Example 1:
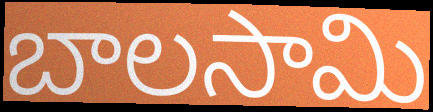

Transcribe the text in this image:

బాలసామి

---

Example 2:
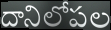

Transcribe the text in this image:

దానిలోపల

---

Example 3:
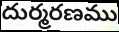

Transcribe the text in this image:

దుర్మరణము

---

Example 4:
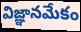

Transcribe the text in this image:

విజ్ఞానమేకం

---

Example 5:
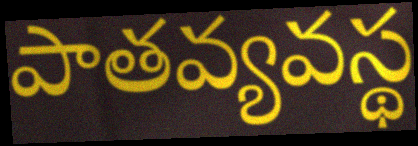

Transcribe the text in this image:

పాతవ్యవస్థ